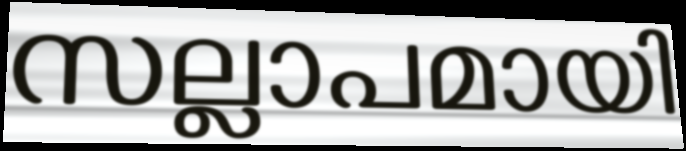
സല്ലാപമായി